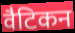
वैटिकन